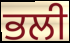
ਭਲੀ